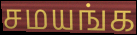
சமயங்க